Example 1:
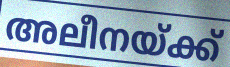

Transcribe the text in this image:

അലീനയ്ക്ക്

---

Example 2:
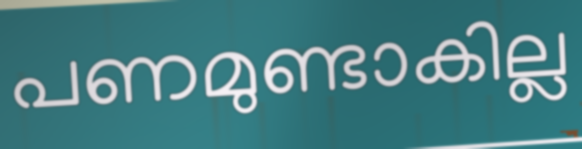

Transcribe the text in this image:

പണമുണ്ടാകില്ല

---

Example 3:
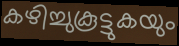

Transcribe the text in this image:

കഴിച്ചുകൂട്ടുകയും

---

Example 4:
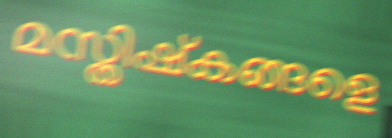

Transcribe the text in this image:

മസ്തിഷ്കങ്ങളെ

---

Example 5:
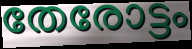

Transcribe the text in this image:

തേരോട്ടം